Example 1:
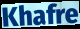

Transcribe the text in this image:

Khafre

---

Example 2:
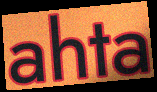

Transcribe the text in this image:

ahta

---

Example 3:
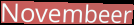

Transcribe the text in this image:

Novembeer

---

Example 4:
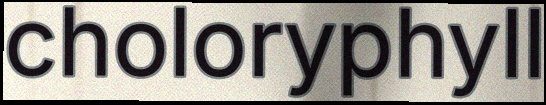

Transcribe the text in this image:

choloryphyll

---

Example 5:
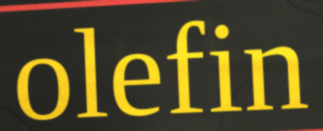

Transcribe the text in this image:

olefin